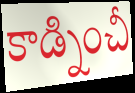
కాడ్నించీ